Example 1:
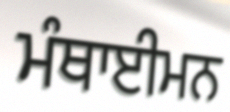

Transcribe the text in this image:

ਮੰਥਾਈਮਨ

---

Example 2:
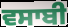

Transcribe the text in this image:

ਵਸਾਬੀ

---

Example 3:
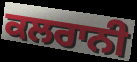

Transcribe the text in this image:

ਕਲਰਾਨੀ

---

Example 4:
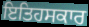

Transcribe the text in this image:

ਇਤਿਹਸਕਾਰ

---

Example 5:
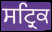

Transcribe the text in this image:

ਸਟ੍ਰਿਕ